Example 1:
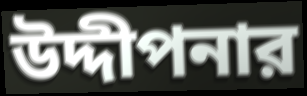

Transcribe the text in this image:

উদ্দীপনার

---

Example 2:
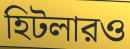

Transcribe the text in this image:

হিটলারও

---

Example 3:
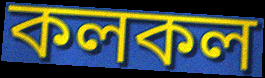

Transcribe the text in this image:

কলকল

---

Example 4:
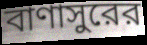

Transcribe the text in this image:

বাণাসুরের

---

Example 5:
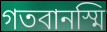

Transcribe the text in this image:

গতবানস্মি